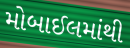
મોબાઈલમાંથી